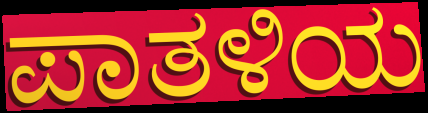
ಪಾತಳಿಯ